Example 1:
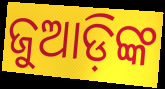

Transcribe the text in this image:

ଜୁଆଡ଼ିଙ୍କ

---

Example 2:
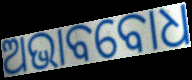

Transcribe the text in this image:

ଅଭାବବୋଧ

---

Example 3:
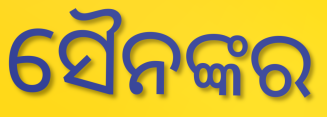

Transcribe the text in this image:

ସୈନଙ୍କର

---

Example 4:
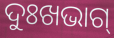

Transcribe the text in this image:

ଦୁଃଖଭାଗ୍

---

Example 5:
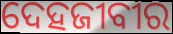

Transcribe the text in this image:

ଦେହଜୀବୀର